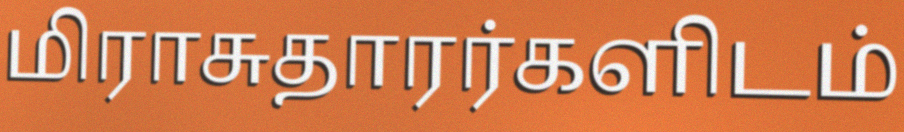
மிராசுதாரர்களிடம்